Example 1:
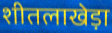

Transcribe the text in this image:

शीतलाखेड़ा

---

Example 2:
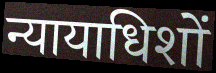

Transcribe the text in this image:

न्यायाधिशों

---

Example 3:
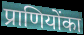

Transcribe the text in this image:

प्राणियोंका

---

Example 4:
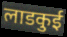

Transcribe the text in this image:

लाडकुई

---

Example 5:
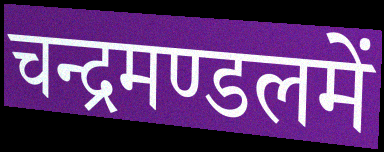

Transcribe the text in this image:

चन्द्रमण्डलमें